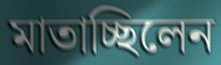
মাতাচ্ছিলেন